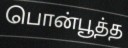
பொன்பூத்த